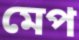
মেপ